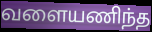
வளையணிந்த